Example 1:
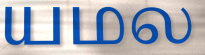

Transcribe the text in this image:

யமல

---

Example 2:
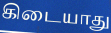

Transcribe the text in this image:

கிடையாது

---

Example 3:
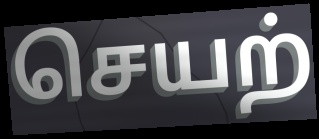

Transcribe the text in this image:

செயற்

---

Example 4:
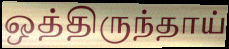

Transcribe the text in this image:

ஒத்திருந்தாய்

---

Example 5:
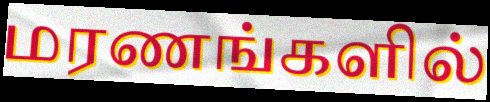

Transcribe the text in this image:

மரணங்களில்